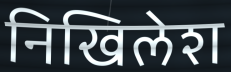
निखिलेश